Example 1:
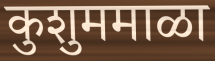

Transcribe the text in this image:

कुशुममाळा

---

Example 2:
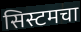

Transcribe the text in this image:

सिस्टमचा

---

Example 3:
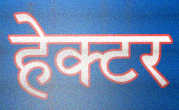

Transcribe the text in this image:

हेक्‍टर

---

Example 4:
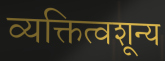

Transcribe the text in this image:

व्यक्तित्वशून्य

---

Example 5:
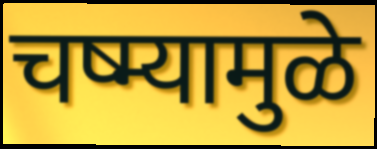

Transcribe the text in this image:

चष्म्यामुळे